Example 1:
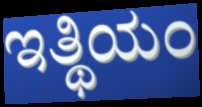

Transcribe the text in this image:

ಇತ್ಥಿಯಂ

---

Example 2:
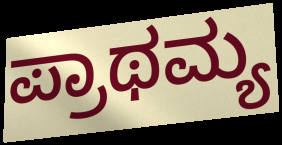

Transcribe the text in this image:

ಪ್ರಾಥಮ್ಯ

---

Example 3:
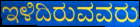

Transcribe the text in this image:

ಇಳಿದಿರುವವರು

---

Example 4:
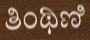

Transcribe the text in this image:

ತಿಂಥಿಣಿ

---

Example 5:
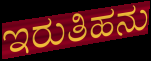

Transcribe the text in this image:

ಇರುತಿಹನು